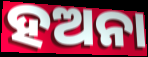
ହଅନା